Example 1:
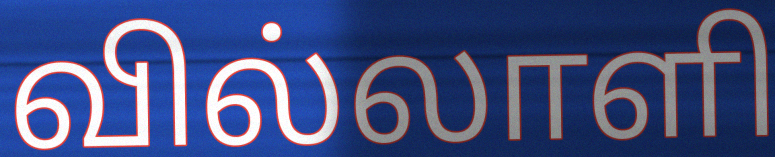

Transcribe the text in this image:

வில்லாளி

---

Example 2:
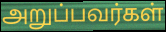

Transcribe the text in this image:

அறுப்பவர்கள்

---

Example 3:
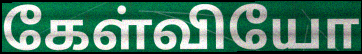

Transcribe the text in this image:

கேள்வியோ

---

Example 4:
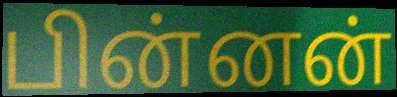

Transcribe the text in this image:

பின்னன்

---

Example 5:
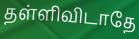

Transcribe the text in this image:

தள்ளிவிடாதே